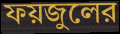
ফয়জুলের